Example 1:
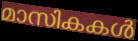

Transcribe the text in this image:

മാസികകൾ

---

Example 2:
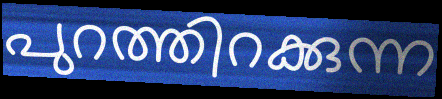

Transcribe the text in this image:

പുറത്തിറക്കുന്ന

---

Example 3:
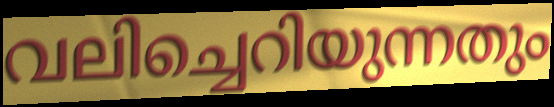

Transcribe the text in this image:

വലിച്ചെറിയുന്നതും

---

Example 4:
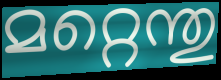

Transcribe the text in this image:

മറ്റെന്തു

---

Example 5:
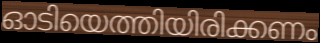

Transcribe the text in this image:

ഓടിയെത്തിയിരിക്കണം